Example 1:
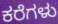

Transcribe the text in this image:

ಕರೆಗಳು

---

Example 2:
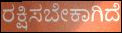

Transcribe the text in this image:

ರಕ್ಷಿಸಬೇಕಾಗಿದೆ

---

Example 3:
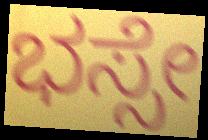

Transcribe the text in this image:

ಭಸ್ಸೇ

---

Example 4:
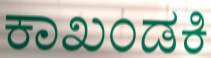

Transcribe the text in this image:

ಕಾಖಂಡಕಿ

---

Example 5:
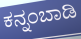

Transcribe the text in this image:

ಕನ್ನಂಬಾಡಿ